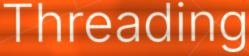
Threading